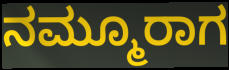
ನಮ್ಮೂರಾಗ